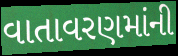
વાતાવરણમાંની